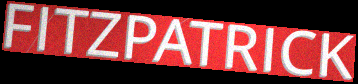
FITZPATRICK